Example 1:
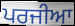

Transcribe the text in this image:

ਪਰਜੀਆ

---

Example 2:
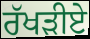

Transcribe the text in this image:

ਰੱਖੜੀਏ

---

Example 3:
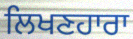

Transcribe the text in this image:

ਲਿਖਣਹਾਰਾ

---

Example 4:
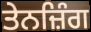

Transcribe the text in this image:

ਤੇਨਜ਼ਿੰਗ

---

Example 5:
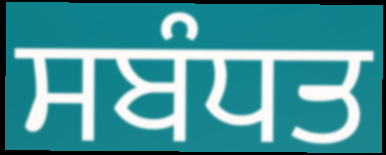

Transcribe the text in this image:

ਸਬੰਧਤ